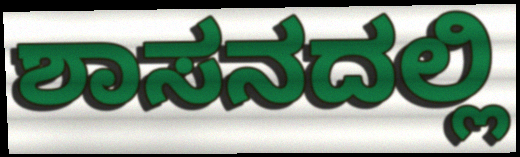
ಶಾಸನದಲ್ಲಿ